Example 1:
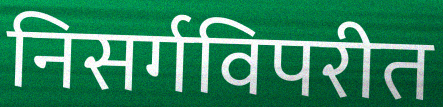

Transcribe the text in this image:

निसर्गविपरीत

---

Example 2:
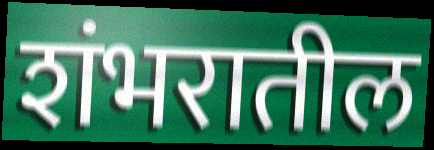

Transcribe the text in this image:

शंभरातील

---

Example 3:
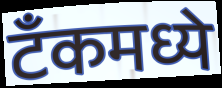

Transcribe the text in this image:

टॅंकमध्ये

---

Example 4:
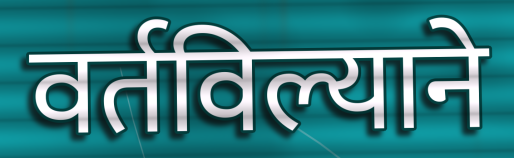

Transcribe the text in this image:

वर्तविल्याने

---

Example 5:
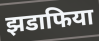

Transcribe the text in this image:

झडाफिया